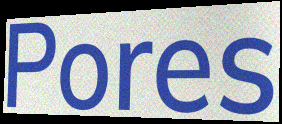
Pores